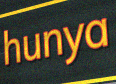
hunya